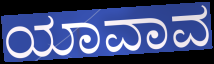
ಯಾವಾವ